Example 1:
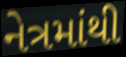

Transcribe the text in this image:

નેત્રમાંથી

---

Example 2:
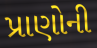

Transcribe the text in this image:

પ્રાણોની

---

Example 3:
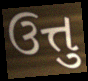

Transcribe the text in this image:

ઉત્તુ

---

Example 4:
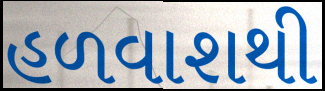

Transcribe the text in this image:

હળવાશથી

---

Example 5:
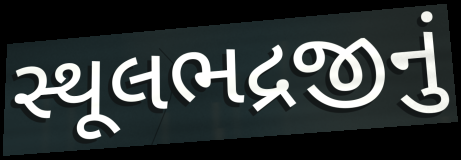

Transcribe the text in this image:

સ્થૂલભદ્રજીનું